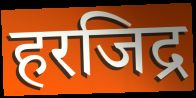
हरजिद्र